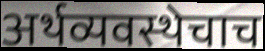
अर्थव्यवस्थेचाच